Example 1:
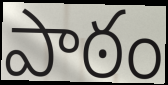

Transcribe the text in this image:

పాఠం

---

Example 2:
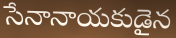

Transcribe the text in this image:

సేనానాయకుడైన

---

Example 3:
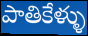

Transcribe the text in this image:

పాతికేళ్ళు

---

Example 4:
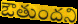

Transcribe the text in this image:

ఔతుందని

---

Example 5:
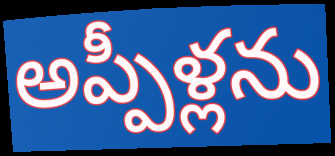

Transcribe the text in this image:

అప్పీళ్లను